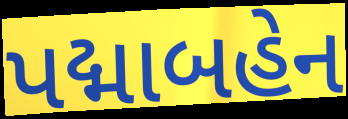
પદ્માબહેન